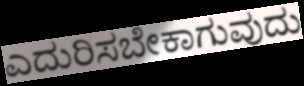
ಎದುರಿಸಬೇಕಾಗುವುದು